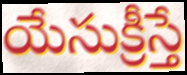
యేసుక్రీస్తే